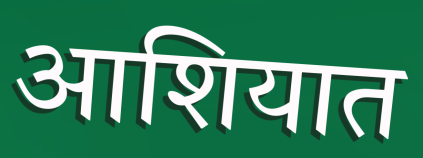
आशियात